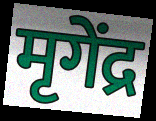
मृगेंद्र